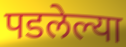
पडलेल्या